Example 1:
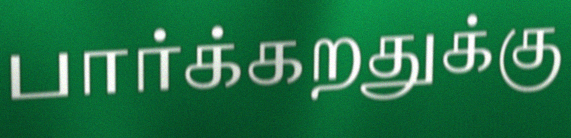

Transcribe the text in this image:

பார்க்கறதுக்கு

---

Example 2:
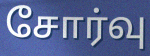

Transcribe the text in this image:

சோர்வு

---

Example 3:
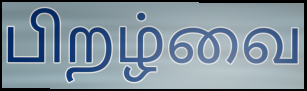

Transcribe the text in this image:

பிறழ்வை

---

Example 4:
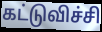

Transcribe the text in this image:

கட்டுவிச்சி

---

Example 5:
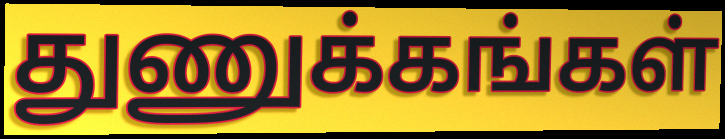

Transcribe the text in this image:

துணுக்கங்கள்